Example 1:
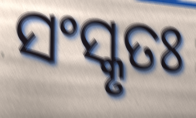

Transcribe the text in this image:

ସଂସ୍କୃତଃ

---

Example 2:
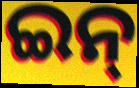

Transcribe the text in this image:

ଇନ୍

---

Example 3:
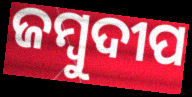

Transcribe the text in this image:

ଜମ୍ବୁଦୀପ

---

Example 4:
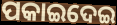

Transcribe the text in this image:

ପକାଇଦେଇ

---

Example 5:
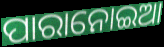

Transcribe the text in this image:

ପାରାନୋଇଆ